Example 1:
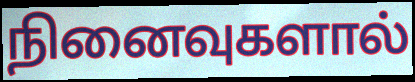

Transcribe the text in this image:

நினைவுகளால்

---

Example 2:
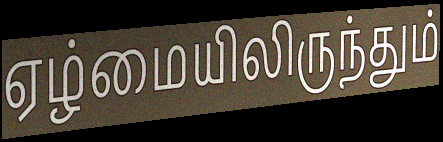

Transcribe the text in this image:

ஏழ்மையிலிருந்தும்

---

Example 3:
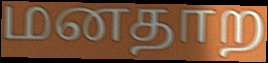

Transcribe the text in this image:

மனதாற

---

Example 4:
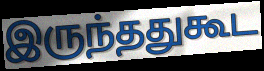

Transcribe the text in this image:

இருந்ததுகூட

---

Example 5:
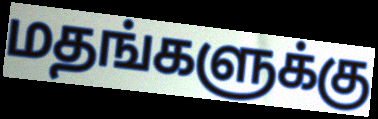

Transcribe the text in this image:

மதங்களுக்கு